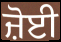
ਜ਼ੋਈ